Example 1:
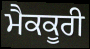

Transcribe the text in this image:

ਮੈਕਕੂਰੀ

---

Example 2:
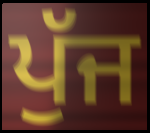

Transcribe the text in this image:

ਪੁੱਜ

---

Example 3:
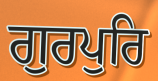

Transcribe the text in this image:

ਗੁਰਪੁਰਿ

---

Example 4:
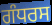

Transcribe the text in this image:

ਗੰਧਰਸ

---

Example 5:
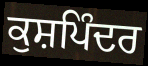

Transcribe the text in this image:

ਕੁਸ਼ਪਿੰਦਰ